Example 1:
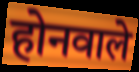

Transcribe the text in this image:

होनवाले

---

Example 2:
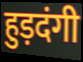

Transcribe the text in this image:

हुड़दंगी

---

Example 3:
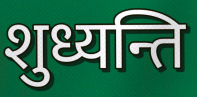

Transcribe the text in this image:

शुध्यन्ति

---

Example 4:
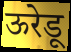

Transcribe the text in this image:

ऊरेडू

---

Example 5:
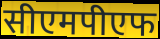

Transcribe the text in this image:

सीएमपीएफ